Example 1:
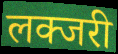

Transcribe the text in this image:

लक्जरी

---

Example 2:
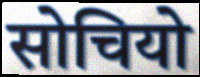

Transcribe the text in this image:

सोचियो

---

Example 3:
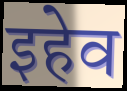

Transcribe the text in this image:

इहेव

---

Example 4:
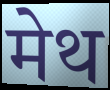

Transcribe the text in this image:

मेथ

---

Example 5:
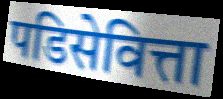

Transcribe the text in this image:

पडिसेवित्ता